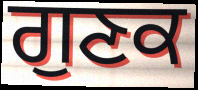
ਗੁਣਕ